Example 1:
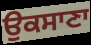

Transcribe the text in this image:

ਉਕਸਾਣਾ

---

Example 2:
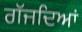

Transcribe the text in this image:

ਗੱਜਦਿਆਂ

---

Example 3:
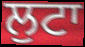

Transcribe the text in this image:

ਲੁਟਾ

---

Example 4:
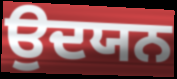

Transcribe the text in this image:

ਉਦਯਨ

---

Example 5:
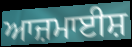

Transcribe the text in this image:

ਆਜ਼ਮਾਈਸ਼